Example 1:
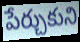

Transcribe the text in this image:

పేర్చుకుని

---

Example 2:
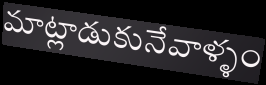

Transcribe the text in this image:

మాట్లాడుకునేవాళ్ళం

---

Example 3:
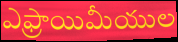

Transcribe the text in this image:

ఎఫ్రాయిమీయుల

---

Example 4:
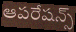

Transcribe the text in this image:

ఆపరేషన్స్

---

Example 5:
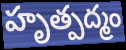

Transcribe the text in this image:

హృత్పద్మం